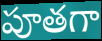
పూతగా